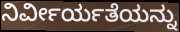
ನಿರ್ವೀರ್ಯತೆಯನ್ನು